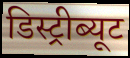
डिस्ट्रीब्यूट